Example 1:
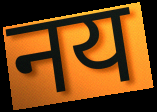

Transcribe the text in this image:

नय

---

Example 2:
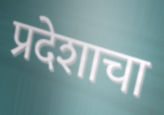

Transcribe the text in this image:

प्रदेशाचा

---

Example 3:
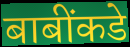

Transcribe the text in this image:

बाबींकडे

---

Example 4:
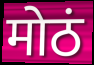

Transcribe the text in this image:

मोठं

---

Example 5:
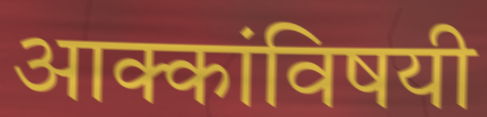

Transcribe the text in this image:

आक्कांविषयी